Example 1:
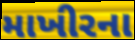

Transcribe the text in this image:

માખીરના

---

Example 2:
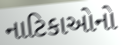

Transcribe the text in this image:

નાટિકાઓનો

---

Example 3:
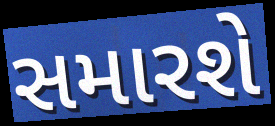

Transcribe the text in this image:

સમારશે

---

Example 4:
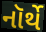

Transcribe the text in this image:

નૉર્થે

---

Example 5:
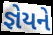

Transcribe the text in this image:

જ્ઞેયને